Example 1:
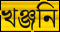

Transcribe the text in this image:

খঞ্জনি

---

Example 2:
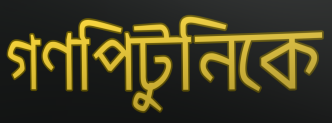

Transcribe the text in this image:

গণপিটুনিকে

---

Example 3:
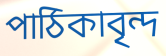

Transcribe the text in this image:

পাঠিকাবৃন্দ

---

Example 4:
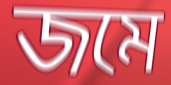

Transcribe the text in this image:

জমে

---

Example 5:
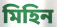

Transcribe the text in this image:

মিহিন